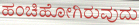
ಹಂಚಿಹೋಗಿರುವುದು